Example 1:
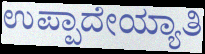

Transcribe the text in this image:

ಉಪ್ಪಾದೇಯ್ಯಾತಿ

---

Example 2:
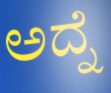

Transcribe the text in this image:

ಅದ್ನೆ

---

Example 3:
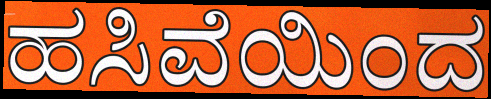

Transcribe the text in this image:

ಹಸಿವೆಯಿಂದ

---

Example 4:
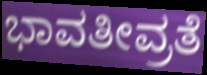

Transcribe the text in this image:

ಭಾವತೀವ್ರತೆ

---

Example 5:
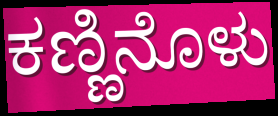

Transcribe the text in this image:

ಕಣ್ಣಿನೊಳು